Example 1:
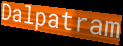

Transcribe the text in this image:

Dalpatram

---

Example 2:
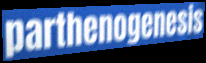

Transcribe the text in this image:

parthenogenesis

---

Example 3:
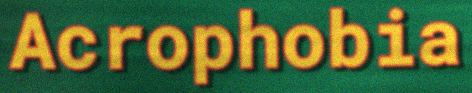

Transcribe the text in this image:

Acrophobia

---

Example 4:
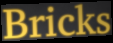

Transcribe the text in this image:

Bricks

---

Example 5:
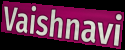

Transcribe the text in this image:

Vaishnavi